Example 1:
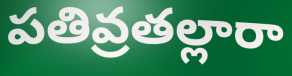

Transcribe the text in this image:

పతివ్రతల్లారా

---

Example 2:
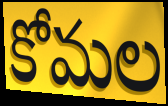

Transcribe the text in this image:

కోమల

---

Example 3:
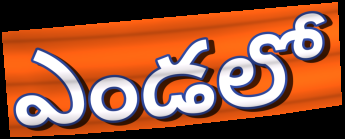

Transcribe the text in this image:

ఎండలో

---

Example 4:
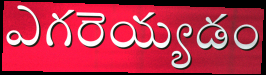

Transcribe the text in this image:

ఎగరెయ్యడం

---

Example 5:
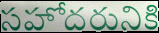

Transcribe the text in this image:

సహోదరునికి